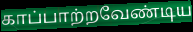
காப்பாற்றவேண்டிய